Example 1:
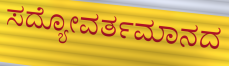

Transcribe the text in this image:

ಸದ್ಯೋವರ್ತಮಾನದ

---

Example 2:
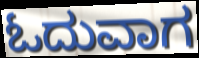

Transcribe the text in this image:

ಓದುವಾಗ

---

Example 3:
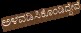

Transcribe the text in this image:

ಅಳವಡಿಸಿಕೊಂಡಿದ್ದೇವೆ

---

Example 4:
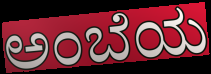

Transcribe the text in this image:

ಅಂಬೆಯ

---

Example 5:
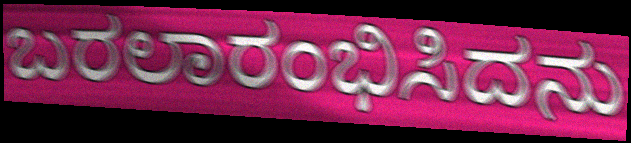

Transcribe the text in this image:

ಬರಲಾರಂಭಿಸಿದನು